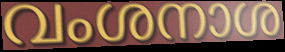
വംശനാശ